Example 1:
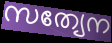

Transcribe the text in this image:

സത്യേന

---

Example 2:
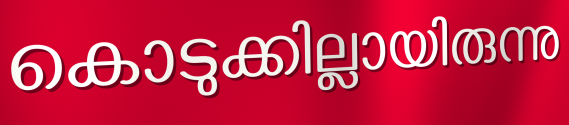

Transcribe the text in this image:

കൊടുക്കില്ലായിരുന്നു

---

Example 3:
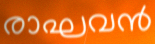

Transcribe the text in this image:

രാഘവൻ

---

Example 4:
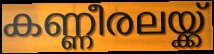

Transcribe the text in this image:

കണ്ണീരലയ്ക്ക്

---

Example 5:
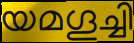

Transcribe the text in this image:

യമഗൂച്ചി